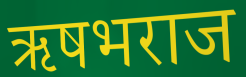
ऋषभराज